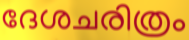
ദേശചരിത്രം